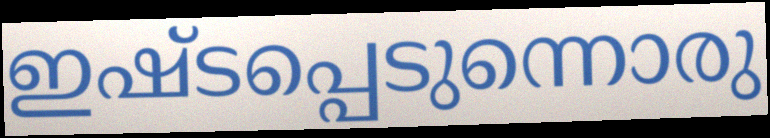
ഇഷ്ടപ്പെടുന്നൊരു